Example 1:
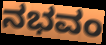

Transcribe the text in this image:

ನಭವಂ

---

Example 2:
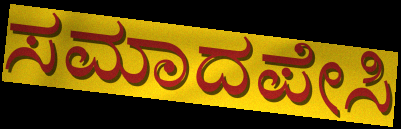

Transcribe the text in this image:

ಸಮಾದಪೇಸಿ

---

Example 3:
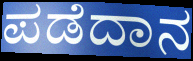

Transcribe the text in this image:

ಪಡೆದಾನ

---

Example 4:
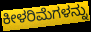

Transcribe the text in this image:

ಕೀಳರಿಮೆಗಳನ್ನು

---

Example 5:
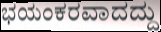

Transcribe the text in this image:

ಭಯಂಕರವಾದದ್ದು